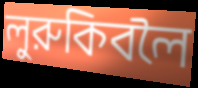
লুৰুকিবলৈ